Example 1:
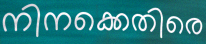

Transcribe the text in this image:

നിനക്കെതിരെ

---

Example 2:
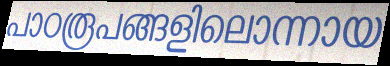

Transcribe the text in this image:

പാഠരൂപങ്ങളിലൊന്നായ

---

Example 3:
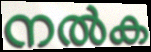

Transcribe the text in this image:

നൽക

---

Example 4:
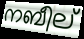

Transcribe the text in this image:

നബീല്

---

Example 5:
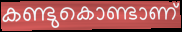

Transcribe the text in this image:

കണ്ടുകൊണ്ടാണ്